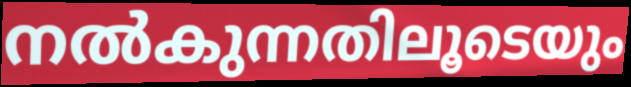
നൽകുന്നതിലൂടെയും